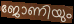
ജോണിയും